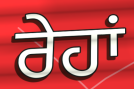
ਰੇਹਾਂ